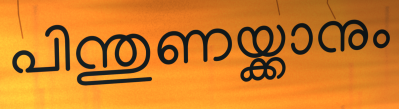
പിന്തുണയ്ക്കാനും